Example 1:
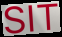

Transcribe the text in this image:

SIT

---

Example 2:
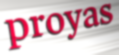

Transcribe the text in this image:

proyas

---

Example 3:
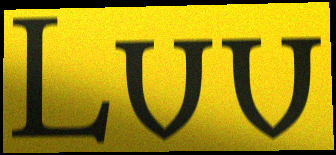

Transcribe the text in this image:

Luu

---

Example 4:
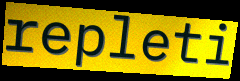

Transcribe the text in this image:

repleti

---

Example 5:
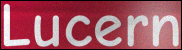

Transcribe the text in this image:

Lucern